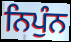
ਨਿਪੁੰਨ